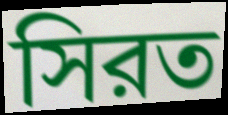
সিরত